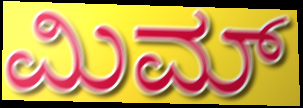
ಮಿಮ್